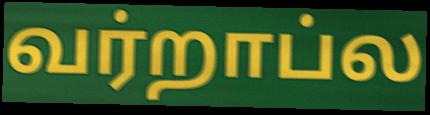
வர்றாப்ல